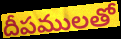
దీపములతో